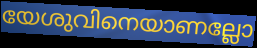
യേശുവിനെയാണല്ലോ